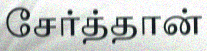
சேர்த்தான்